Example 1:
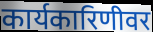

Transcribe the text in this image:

कार्यकारिणीवर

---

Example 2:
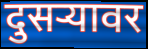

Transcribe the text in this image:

दुसऱ्यावर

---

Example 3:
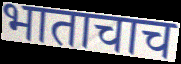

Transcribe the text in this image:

भाताचाच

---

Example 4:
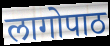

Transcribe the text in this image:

लागोपाठ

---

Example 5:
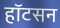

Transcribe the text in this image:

हॉटसन